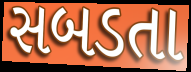
સબડતા